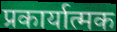
प्रकार्यात्मक